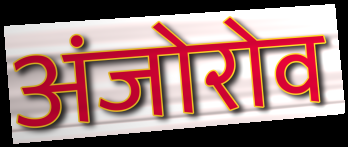
अंजोरोव